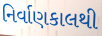
નિર્વાણકાલથી